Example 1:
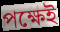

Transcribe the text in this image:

পক্ষেই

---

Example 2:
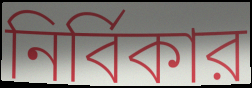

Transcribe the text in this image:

নির্বিকার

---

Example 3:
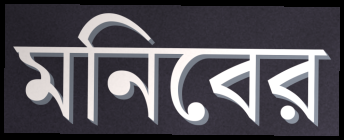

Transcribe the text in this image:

মনিবের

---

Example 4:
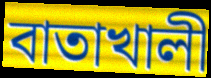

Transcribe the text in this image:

বাতাখালী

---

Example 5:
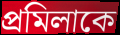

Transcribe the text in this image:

প্রমিলাকে